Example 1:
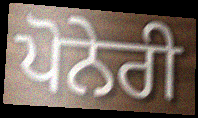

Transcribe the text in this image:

ਪੋਨੇਰੀ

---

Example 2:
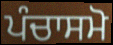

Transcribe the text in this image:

ਪੰਚਾਸਮੋ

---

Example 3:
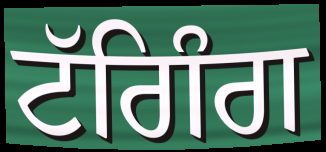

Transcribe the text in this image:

ਟੱਗਿੰਗ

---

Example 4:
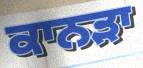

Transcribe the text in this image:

ਕਾਨੜਾ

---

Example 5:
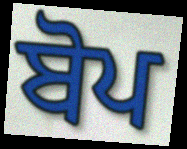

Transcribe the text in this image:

ਬੋਪ